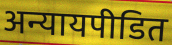
अन्यायपीडित